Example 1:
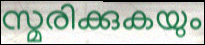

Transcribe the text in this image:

സ്മരിക്കുകയും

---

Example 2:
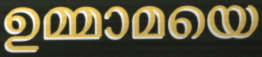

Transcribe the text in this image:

ഉമ്മാമയെ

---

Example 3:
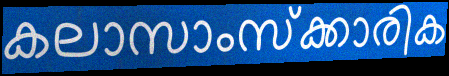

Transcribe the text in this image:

കലാസാംസ്ക്കാരിക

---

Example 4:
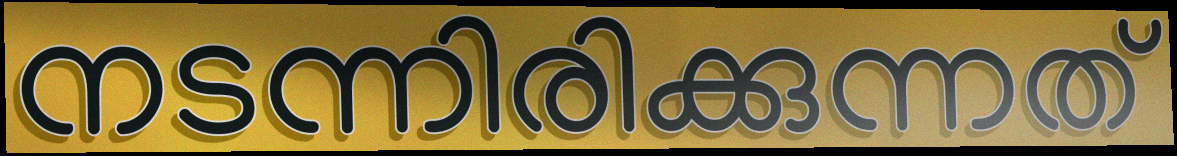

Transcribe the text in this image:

നടന്നിരിക്കുന്നത്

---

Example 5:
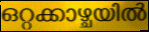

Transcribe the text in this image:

ഒറ്റക്കാഴ്ചയിൽ